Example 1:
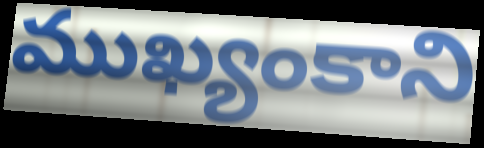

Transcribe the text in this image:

ముఖ్యంకాని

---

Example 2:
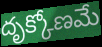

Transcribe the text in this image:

దృక్కోణమే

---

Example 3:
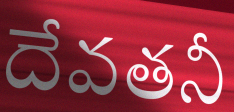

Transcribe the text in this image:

దేవతనీ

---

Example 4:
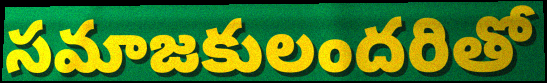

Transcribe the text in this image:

సమాజకులందరితో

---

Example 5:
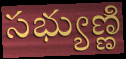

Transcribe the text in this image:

సభ్యుణ్ణి